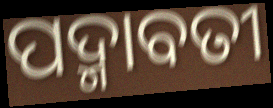
ପଦ୍ମାବତୀ